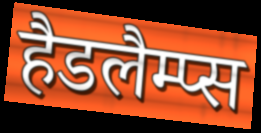
हैडलैम्प्स